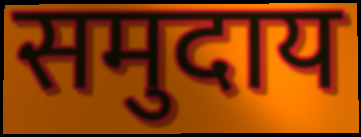
समुदाय